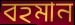
বহমান